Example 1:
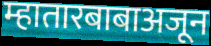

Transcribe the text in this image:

म्हातारबाबाअजून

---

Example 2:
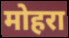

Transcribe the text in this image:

मोहरा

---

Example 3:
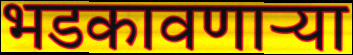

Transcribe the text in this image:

भडकावणाऱ्या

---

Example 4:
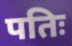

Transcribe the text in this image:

पतिः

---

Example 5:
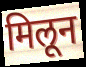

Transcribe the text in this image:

मिलून